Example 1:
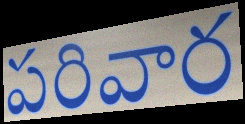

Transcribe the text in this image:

పరివార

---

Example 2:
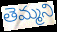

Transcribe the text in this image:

తెమ్మని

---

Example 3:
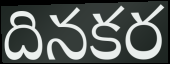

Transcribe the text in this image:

దినకర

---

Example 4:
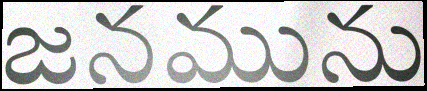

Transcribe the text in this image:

జనమును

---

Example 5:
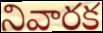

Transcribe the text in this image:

నివారక